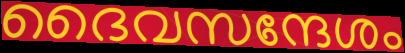
ദൈവസന്ദേശം